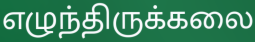
எழுந்திருக்கலை